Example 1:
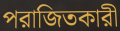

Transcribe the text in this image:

পরাজিতকারী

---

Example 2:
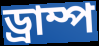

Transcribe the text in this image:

ড্রাম্প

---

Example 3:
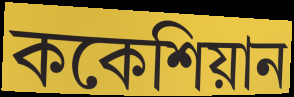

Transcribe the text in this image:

ককেশিয়ান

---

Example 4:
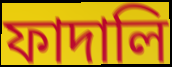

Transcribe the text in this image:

ফাদালি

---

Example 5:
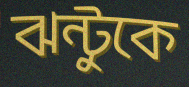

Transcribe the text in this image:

ঝন্টুকে